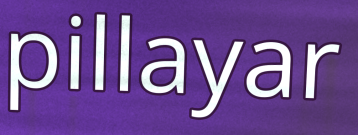
pillayar